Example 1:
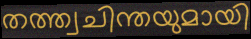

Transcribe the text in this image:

തത്ത്വചിന്തയുമായി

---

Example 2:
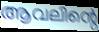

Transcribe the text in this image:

ആവലിന്റെ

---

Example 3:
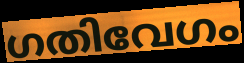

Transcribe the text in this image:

ഗതിവേഗം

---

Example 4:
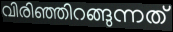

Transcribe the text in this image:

വിരിഞ്ഞിറങ്ങുന്നത്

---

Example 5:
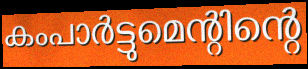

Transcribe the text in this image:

കംപാർട്ടുമെന്റിന്റെ